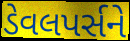
ડેવલપર્સને